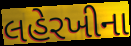
લહેરખીના